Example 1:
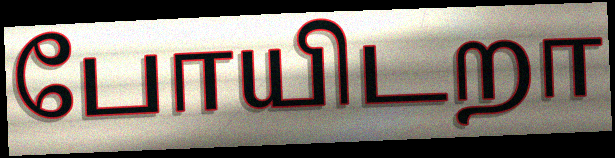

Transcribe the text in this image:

போயிடறா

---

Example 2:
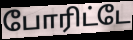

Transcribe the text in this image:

போரிட்டே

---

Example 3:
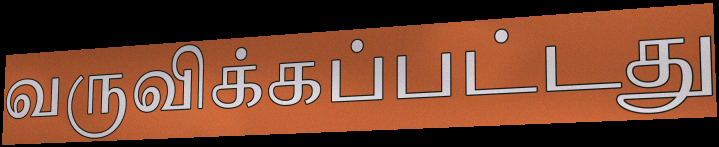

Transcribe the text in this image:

வருவிக்கப்பட்டது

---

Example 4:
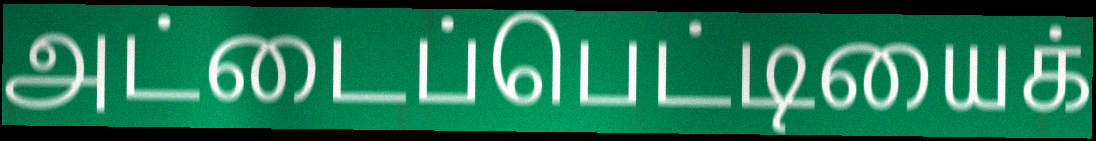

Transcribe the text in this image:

அட்டைப்பெட்டியைக்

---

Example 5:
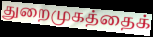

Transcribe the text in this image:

துறைமுகத்தைக்